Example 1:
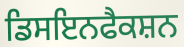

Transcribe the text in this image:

ਡਿਸਇਨਫੈਕਸ਼ਨ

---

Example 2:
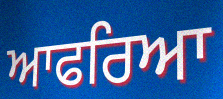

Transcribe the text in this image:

ਆਫਰਿਆ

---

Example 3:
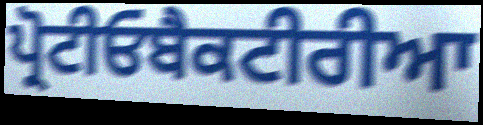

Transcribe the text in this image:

ਪ੍ਰੋਟੀਓਬੈਕਟੀਰੀਆ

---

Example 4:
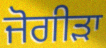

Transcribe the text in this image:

ਜੋਗੀੜਾ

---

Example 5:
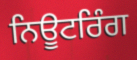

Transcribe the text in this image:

ਨਿਊਟਰਿੰਗ